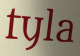
tyla